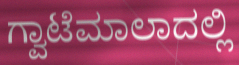
ಗ್ವಾಟೆಮಾಲಾದಲ್ಲಿ